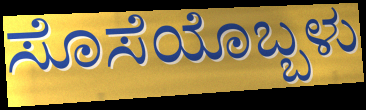
ಸೊಸೆಯೊಬ್ಬಳು